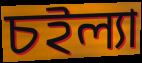
চইল্যা